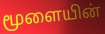
மூளையின்